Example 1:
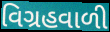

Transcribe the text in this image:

વિગ્રહવાળી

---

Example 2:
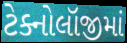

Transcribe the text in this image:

ટેક્નોલૉજીમાં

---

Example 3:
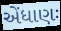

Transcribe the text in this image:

એંધાણઃ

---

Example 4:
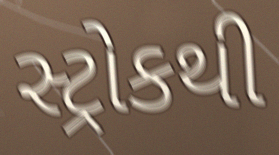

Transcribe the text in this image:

સ્ટ્રોકથી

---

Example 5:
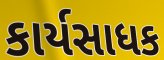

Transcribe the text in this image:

કાર્યસાધક